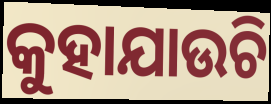
କୁହାଯାଉଚି